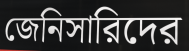
জেনিসারিদের